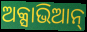
ଅକ୍ସାଭିଆନ୍